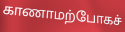
காணாமற்போகச்